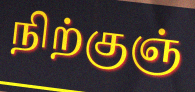
நிற்குஞ்